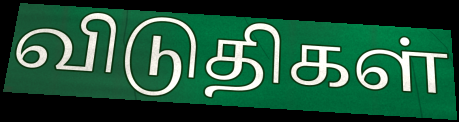
விடுதிகள்